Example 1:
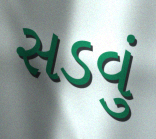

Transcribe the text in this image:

સડવું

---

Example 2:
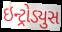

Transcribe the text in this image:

ઇન્ટ્રોડ્યુસ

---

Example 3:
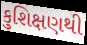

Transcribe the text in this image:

કુશિક્ષણથી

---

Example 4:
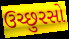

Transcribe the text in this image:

ઉચ્છુરસો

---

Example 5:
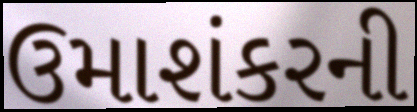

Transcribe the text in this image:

ઉમાશંકરની